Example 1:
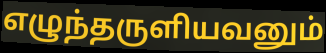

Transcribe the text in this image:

எழுந்தருளியவனும்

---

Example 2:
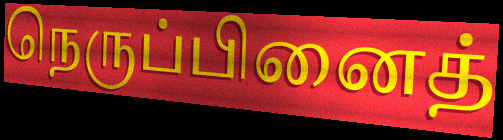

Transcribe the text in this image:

நெருப்பினைத்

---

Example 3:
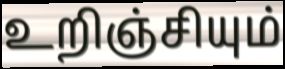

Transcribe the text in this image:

உறிஞ்சியும்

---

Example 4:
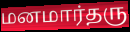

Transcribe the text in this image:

மனமார்தரு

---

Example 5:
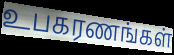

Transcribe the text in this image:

உபகரணங்கள்